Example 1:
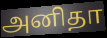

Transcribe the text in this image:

அனிதா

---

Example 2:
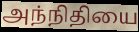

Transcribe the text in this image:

அந்நிதியை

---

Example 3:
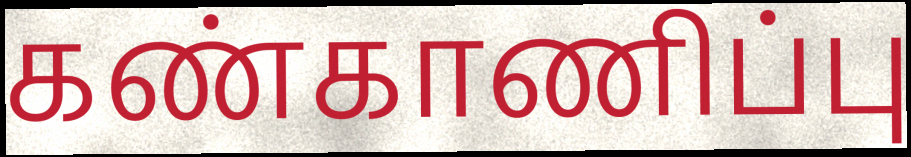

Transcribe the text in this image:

கண்காணிப்பு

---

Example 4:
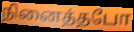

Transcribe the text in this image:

நினைத்தபோ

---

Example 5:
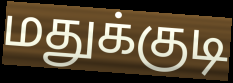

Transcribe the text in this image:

மதுக்குடி